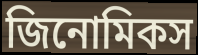
জিনোমিকস